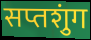
सप्तश्रुंग